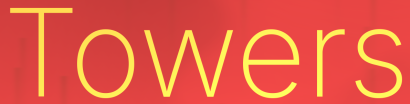
Towers